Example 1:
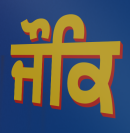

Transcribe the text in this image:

ਜੌਕਿ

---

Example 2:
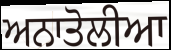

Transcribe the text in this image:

ਅਨਾਤੋਲੀਆ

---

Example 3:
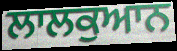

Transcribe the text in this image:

ਲਾਲਕੁਆਨ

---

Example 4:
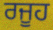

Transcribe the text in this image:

ਰਜੂਹ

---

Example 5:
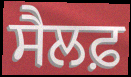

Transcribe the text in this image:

ਸੈਲਫ਼